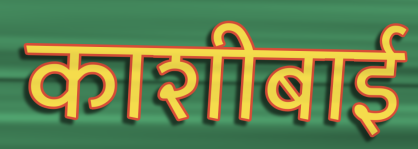
काशीबाई